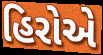
હિરોએ